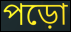
পড়ো